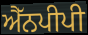
ਐੱਨਪੀਪੀ